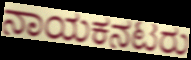
ನಾಯಕನಟರು